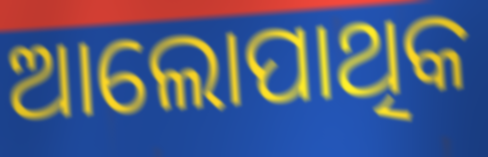
ଆଲୋପାଥିକ